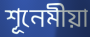
শূনেমীয়া